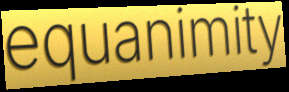
equanimity